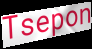
Tsepon